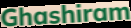
Ghashiram